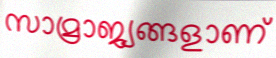
സാമ്രാജ്യങ്ങളാണ്